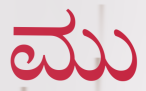
ಮು